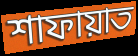
শাফায়াত